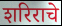
शरिराचे